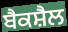
ਬੈਕਸ਼ੈਲ